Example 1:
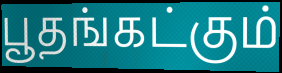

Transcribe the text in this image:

பூதங்கட்கும்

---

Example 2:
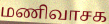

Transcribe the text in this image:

மணிவாசக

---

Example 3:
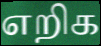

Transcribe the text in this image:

எறிக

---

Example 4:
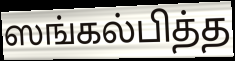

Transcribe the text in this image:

ஸங்கல்பித்த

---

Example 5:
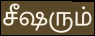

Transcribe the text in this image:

சீஷரும்